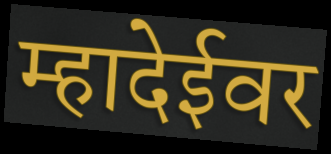
म्हादेईवर